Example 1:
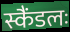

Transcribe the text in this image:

स्कैंडलः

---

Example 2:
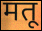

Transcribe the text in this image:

मतू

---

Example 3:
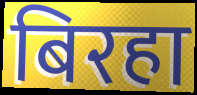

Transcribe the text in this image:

बिरहा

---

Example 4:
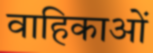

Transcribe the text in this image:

वाहिकाओं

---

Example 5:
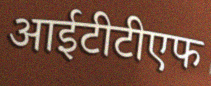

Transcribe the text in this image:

आईटीटीएफ